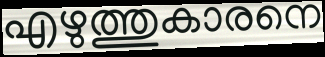
എഴുത്തുകാരനെ